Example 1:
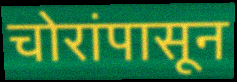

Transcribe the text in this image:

चोरांपासून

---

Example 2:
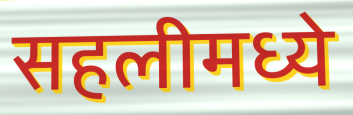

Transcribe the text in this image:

सहलीमध्ये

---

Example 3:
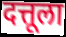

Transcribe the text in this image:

दत्तूला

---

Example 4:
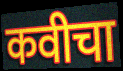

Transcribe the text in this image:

कवीचा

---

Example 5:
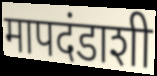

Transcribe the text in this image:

मापदंडाशी